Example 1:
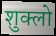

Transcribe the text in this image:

शुक्लो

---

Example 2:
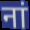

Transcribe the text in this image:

नां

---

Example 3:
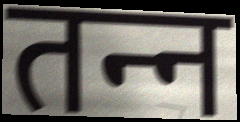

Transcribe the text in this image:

तन्न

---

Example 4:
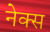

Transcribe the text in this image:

नेक्स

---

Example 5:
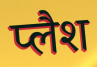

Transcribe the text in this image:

प्लैश